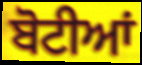
ਬੋਟੀਆਂ